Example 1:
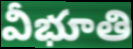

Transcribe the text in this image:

వీభూతి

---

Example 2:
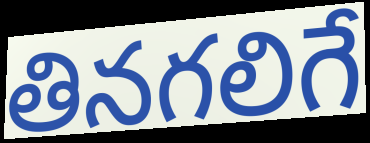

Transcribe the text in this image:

తినగలిగే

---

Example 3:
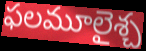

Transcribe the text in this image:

ఫలమూలైశ్చ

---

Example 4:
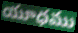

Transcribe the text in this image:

యూధము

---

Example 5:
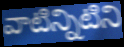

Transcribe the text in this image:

వాటిన్నిటిని